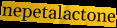
nepetalactone